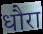
धौरा